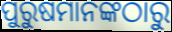
ପୁରୁଷମାନଙ୍କଠାରୁ